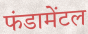
फंडामेंटल